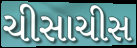
ચીસાચીસ